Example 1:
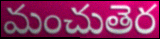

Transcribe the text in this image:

మంచుతెర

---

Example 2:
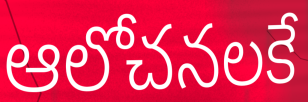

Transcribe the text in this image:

ఆలోచనలకే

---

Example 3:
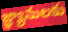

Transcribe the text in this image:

జ్ఞ్యానులకు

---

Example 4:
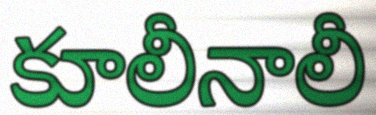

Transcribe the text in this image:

కూలీనాలీ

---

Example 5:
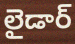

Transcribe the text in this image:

లైడార్